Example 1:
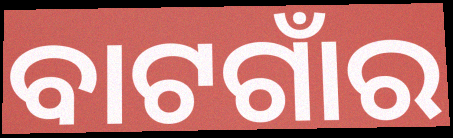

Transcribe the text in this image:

ବାଟଗାଁର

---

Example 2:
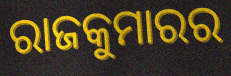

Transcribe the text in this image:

ରାଜକୁମାରର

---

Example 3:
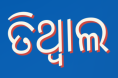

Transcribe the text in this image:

ତିଥ୍ୱାଲ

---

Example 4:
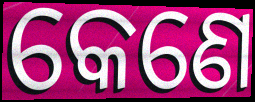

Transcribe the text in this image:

କେଣେ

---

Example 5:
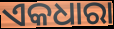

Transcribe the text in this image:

ଏକଧାରା